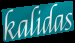
kalidas